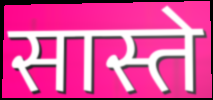
सास्ते